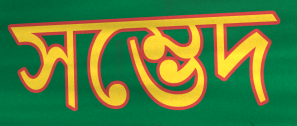
সম্ভেদ